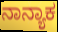
ನಾನ್ಯಾಕ